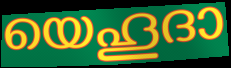
യെഹൂദാ